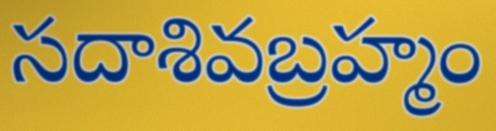
సదాశివబ్రహ్మం